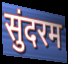
सुंदरम